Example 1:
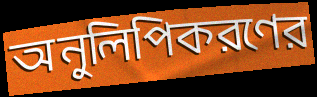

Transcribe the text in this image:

অনুলিপিকরণের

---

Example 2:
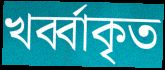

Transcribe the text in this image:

খর্ব্বাকৃত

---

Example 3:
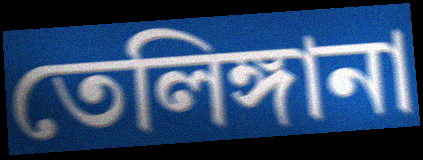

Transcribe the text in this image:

তেলিঙ্গানা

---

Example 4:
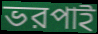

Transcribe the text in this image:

ভরপাই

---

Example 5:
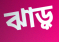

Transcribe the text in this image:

ঝাড়ু